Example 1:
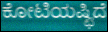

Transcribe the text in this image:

ಕೋಟಿಯಷ್ಟಿದೆ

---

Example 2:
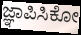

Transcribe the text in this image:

ಜ್ಞಾಪಿಸಿಕೋ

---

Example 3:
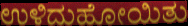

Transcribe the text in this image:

ಉಳಿದುಹೋಯಿತು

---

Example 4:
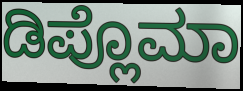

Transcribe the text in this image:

ಡಿಪ್ಲೊಮಾ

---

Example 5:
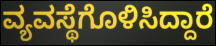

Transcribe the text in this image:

ವ್ಯವಸ್ಥೆಗೊಳಿಸಿದ್ದಾರೆ